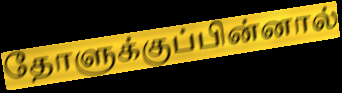
தோளுக்குப்பின்னால்